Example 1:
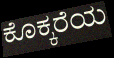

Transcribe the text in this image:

ಕೊಕ್ಕರೆಯ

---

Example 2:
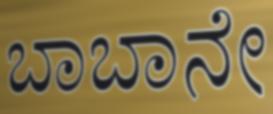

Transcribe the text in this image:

ಬಾಬಾನೇ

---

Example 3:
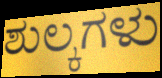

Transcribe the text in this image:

ಶುಲ್ಕಗಳು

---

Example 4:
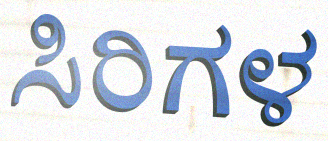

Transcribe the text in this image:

ಸಿರಿಗಳ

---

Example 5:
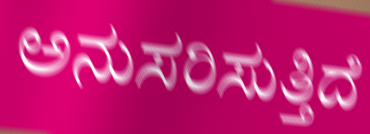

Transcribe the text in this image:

ಅನುಸರಿಸುತ್ತಿದೆ